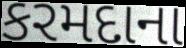
કરમદાના